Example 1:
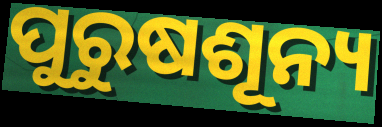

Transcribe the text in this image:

ପୁରୁଷଶୂନ୍ୟ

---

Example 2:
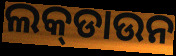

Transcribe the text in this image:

ଲକ୍‌ଡାଉନ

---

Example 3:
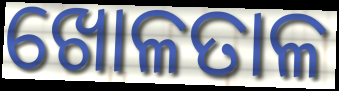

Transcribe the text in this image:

ଖୋଳତାଳ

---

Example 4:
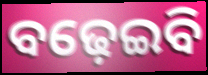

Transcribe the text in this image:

ବଢ଼େଇବି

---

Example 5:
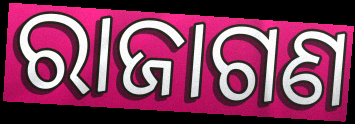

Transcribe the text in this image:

ରାଜାଗଣ